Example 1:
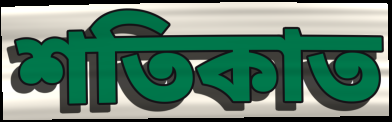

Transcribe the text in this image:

শতিকাত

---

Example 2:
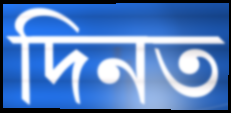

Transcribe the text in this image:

দিনত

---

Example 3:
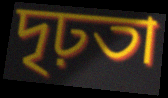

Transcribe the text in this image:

দৃঢ়তা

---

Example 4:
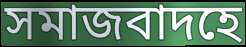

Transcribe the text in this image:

সমাজবাদহে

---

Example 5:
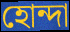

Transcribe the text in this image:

হোন্দা